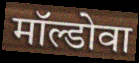
मॉल्डोवा